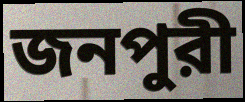
জনপুরী